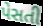
પેસતી